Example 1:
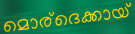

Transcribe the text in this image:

മൊര്ദെക്കായ്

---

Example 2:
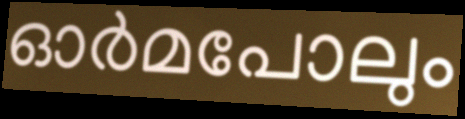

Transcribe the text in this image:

ഓർമപോലും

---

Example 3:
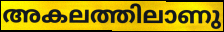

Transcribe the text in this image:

അകലത്തിലാണു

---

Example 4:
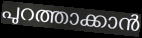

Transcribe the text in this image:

പുറത്താക്കാൻ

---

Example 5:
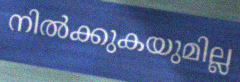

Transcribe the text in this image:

നിൽക്കുകയുമില്ല